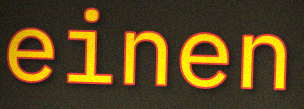
einen